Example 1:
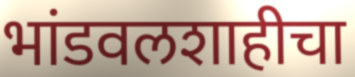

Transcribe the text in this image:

भांडवलशाहीचा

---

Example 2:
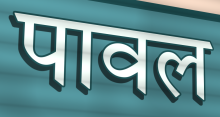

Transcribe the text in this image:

पावल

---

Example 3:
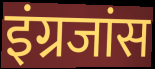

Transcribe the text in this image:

इंग्रजांस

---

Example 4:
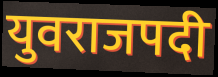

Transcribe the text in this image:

युवराजपदी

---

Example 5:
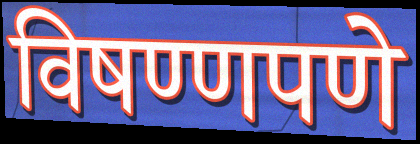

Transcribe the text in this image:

विषण्णपणे